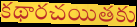
కథారచయితకు